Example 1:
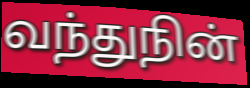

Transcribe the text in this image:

வந்துநின்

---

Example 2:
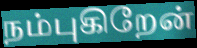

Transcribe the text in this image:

நம்புகிறேன்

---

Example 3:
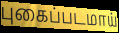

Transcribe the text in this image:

புகைப்படமாய்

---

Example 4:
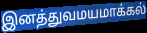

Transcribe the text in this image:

இனத்துவமயமாக்கல்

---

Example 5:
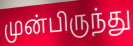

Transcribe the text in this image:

முன்பிருந்து